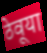
ठेवूया